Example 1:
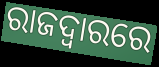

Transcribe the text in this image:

ରାଜଦ୍ୱାରରେ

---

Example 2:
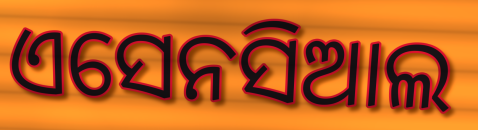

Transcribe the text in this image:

ଏସେନସିଆଲ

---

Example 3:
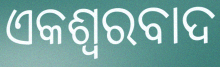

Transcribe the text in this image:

ଏକଶ୍ୱରବାଦ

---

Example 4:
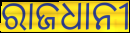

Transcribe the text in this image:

ରାଜଧାନୀ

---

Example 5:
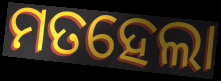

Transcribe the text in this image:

ମତହେଲା